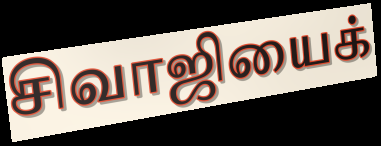
சிவாஜியைக்